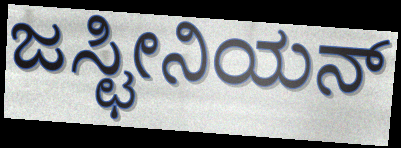
ಜಸ್ಟೀನಿಯನ್